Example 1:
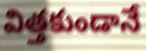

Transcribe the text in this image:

విత్తకుండానే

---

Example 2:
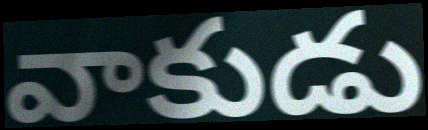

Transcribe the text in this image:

వాకుడు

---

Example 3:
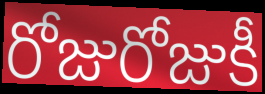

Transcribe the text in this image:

రోజురోజుకీ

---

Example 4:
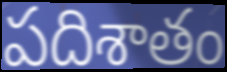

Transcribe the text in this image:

పదిశాతం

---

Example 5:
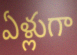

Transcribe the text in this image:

ఏళ్లుగా